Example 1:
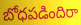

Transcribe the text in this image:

బోధపడిందిరా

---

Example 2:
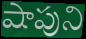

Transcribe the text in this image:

షాపుని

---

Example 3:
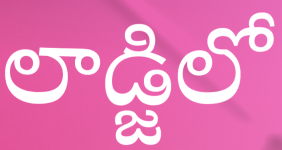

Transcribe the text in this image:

లాడ్జిలో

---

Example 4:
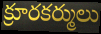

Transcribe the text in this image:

క్రూరకర్ములు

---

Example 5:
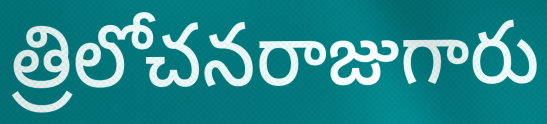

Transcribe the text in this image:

త్రిలోచనరాజుగారు